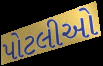
પોટલીઓ